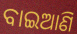
ବାଇଆଣି